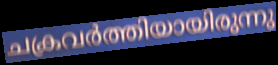
ചക്രവർത്തിയായിരുന്നു